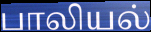
பாலியல்